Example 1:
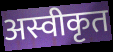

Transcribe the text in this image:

अस्‍वीकृत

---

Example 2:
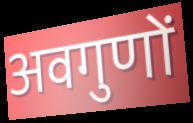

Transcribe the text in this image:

अवगुणों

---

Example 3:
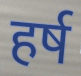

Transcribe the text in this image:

हर्ष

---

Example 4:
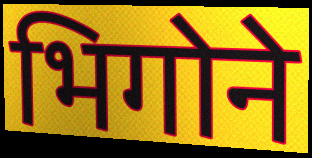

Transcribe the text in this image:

भिगोने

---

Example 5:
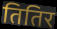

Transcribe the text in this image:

तितिर